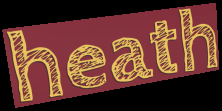
heath